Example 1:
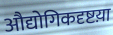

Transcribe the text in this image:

औद्योगिकदृष्टय़ा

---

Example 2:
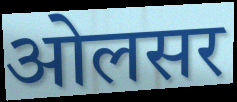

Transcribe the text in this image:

ओलसर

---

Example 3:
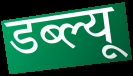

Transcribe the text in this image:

डब्ल्यू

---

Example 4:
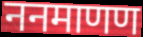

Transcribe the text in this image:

ननमाणण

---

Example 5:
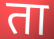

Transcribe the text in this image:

ता